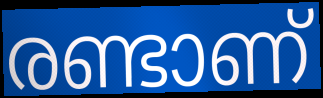
രണ്ടാണ്